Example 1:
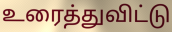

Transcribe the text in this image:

உரைத்துவிட்டு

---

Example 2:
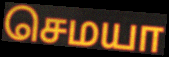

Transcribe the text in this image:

செமயா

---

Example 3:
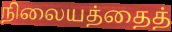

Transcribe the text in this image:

நிலையத்தைத்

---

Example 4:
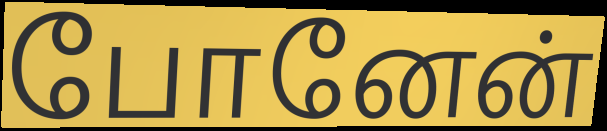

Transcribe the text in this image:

போனேன்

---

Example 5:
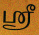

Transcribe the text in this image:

ஸ்ரீ